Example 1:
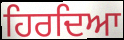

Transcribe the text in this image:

ਹਿਰਦਿਆ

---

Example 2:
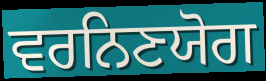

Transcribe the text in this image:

ਵਰਨਿਣਯੋਗ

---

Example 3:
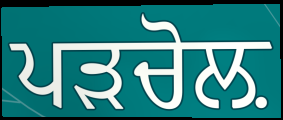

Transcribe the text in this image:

ਪੜਚੋਲ਼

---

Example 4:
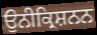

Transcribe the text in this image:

ਉਨੀਕ੍ਰਿਸ਼ਨਨ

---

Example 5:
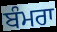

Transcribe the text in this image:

ਬੰਮਰਾ